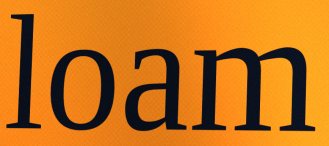
loam